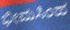
ಭೀಮಸಿಂಹ